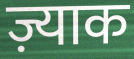
ज़्याक